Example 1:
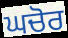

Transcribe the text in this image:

ਘਚੋਰ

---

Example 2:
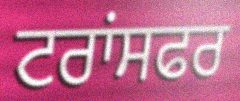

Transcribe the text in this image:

ਟਰਾਂਸਫਰ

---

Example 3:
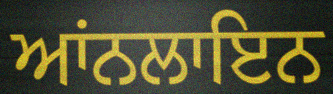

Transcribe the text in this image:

ਆਂਨਲਾਇਨ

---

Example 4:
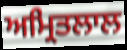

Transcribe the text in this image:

ਅਮ੍ਰਿਤਲਾਲ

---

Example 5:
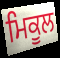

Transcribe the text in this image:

ਮਿਕੂਲ